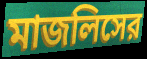
মাজলিসের